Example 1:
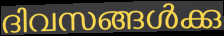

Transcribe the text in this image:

ദിവസങ്ങൾക്കു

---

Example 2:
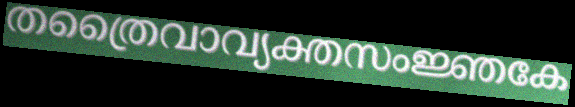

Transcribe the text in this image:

തത്രൈവാവ്യക്തസംജ്ഞകേ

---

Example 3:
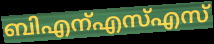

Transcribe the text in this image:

ബിഎന്എസ്എസ്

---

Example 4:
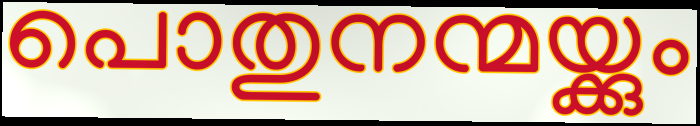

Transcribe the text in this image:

പൊതുനന്മയ്ക്കും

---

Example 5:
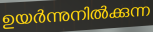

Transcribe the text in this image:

ഉയർന്നുനിൽക്കുന്ന